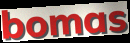
bomas